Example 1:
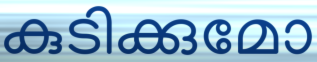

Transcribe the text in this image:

കുടിക്കുമോ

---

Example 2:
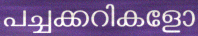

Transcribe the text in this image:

പച്ചക്കറികളോ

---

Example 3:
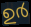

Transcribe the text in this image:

ഉർ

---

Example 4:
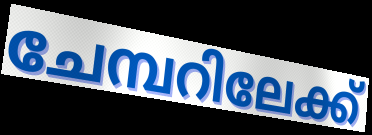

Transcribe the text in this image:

ചേമ്പറിലേക്ക്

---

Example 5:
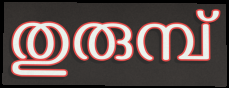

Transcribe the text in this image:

തുരുമ്പ്